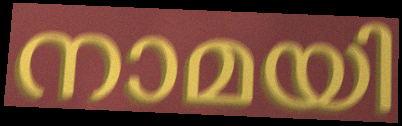
നാമയി